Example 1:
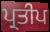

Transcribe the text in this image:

ਪ੍ਰਤੀਪ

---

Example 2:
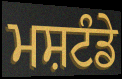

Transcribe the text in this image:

ਮਸ਼ਟੰਡੇ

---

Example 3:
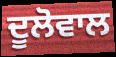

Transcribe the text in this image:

ਦੂਲੋਵਾਲ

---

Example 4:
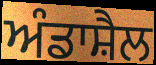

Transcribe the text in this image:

ਅੰਡਾਸ਼ੈਲ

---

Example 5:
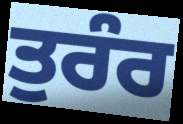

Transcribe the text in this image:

ਤੁਰੰਰ